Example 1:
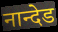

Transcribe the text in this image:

नान्देड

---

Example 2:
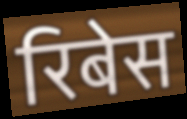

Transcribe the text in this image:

रिबेस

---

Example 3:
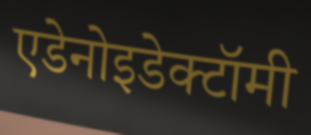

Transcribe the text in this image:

एडेनोइडेक्टॉमी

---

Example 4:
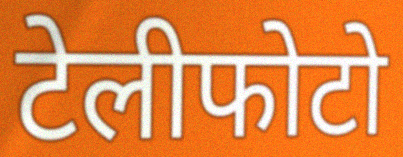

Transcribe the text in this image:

टेलीफोटो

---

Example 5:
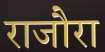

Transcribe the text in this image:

राजौरा